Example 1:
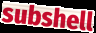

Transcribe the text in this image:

subshell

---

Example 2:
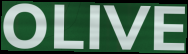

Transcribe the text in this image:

OLIVE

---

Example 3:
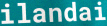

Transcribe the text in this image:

ilandai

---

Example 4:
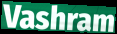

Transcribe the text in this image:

Vashram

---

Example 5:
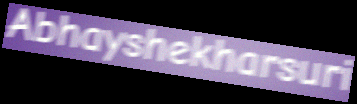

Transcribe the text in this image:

Abhayshekharsuri